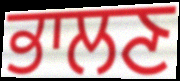
ਭਾਲਣ